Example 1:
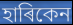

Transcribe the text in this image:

হাৰিকেন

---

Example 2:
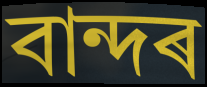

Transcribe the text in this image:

বান্দৰ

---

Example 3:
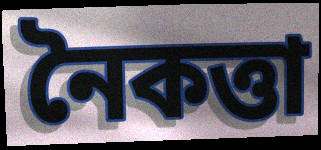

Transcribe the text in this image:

নৈকত্তা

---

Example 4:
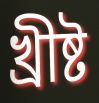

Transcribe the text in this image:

খ্ৰীষ্ট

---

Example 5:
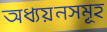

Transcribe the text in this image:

অধ্যয়নসমূহ